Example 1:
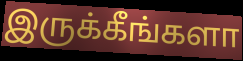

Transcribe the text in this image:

இருக்கீங்களா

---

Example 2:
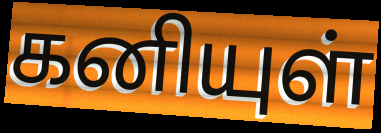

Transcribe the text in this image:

கனியுள்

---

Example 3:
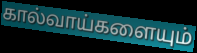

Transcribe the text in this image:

கால்வாய்களையும்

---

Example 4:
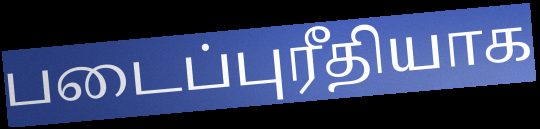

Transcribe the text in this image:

படைப்புரீதியாக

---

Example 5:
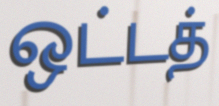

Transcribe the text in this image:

ஒட்டத்